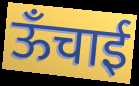
ऊँचाई